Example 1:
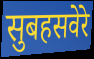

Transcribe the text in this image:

सुबहसवेरे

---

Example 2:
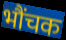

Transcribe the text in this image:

भौंचक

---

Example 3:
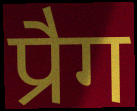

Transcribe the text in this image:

प्रैग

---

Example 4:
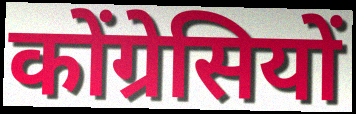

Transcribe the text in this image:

कोंग्रेसियों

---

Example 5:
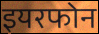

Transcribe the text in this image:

इयरफोन